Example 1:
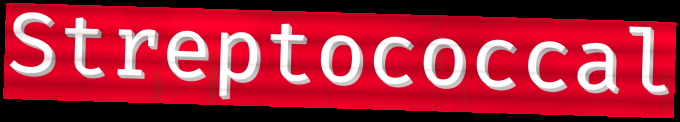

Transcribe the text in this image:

Streptococcal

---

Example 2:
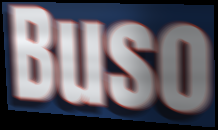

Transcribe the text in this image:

Buso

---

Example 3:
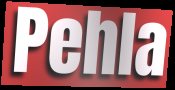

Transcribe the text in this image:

Pehla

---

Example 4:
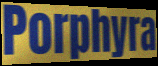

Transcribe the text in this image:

Porphyra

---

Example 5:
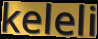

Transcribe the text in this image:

keleli